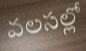
వలసల్లో